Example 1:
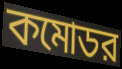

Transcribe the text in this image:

কমোডর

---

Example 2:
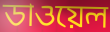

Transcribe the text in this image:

ডাওয়েল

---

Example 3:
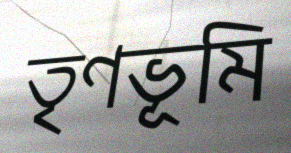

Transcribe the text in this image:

তৃণভূমি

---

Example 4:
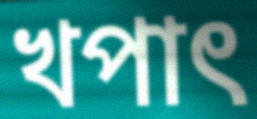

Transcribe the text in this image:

খপাৎ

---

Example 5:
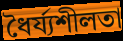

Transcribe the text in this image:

ধৈর্য্যশীলতা